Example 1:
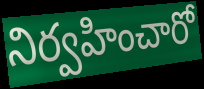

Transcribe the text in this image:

నిర్వహించారో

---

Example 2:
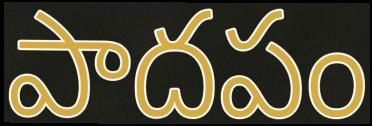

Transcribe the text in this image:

పాదపం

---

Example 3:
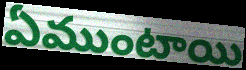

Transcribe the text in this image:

ఏముంటాయి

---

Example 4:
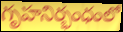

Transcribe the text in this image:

గృహనిర్భంధంలో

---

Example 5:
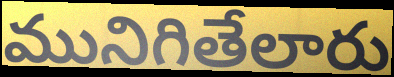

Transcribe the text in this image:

మునిగితేలారు